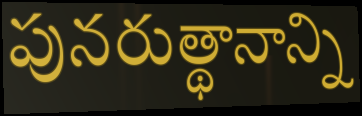
పునరుత్థానాన్ని